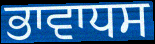
ਭਾਵਾਧਸ